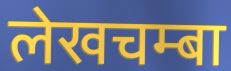
लेखचम्बा